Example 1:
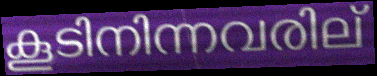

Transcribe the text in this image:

കൂടിനിന്നവരില്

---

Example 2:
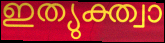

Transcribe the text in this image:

ഇത്യുക്ത്വാ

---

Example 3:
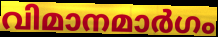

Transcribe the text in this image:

വിമാനമാർഗം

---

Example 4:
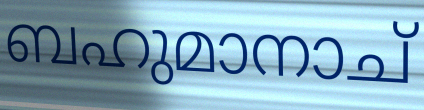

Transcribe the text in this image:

ബഹുമാനാച്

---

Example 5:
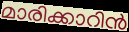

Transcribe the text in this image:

മാരിക്കാറിൻ